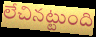
లేచినట్టుంది